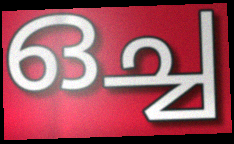
ഒച്ച